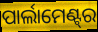
ପାର୍ଲାମେଣ୍ଟ୍‌ର